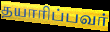
தயாரிப்பவர்